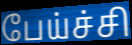
பேய்ச்சி